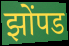
झोंपड